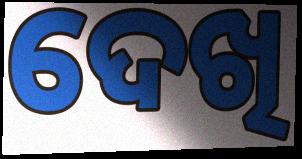
ଦେଖି